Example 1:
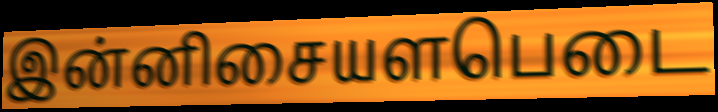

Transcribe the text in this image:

இன்னிசையளபெடை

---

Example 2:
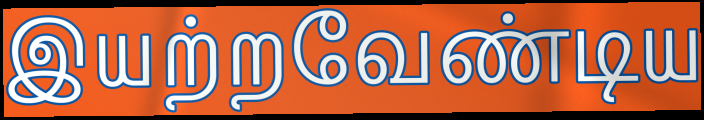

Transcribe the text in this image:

இயற்றவேண்டிய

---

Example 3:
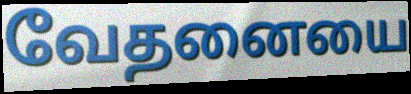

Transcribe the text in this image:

வேதனையை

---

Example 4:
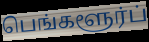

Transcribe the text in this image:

பெங்களூர்ப்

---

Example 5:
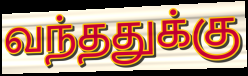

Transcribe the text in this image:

வந்ததுக்கு